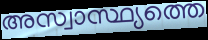
അസ്വാസ്ഥ്യത്തെ